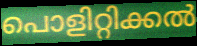
പൊളിറ്റിക്കൽ